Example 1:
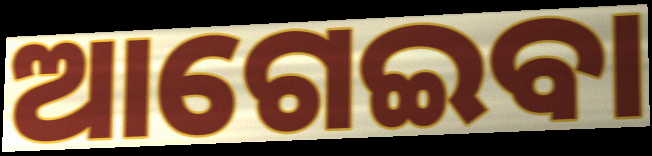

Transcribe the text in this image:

ଆଗେଇବା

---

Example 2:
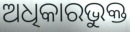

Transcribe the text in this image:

ଅଧିକାରଭୁକ୍ତ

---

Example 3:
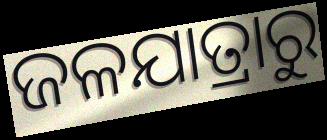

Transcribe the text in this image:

ଜଳଯାତ୍ରାରୁ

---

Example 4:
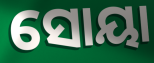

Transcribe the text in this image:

ସୋୟା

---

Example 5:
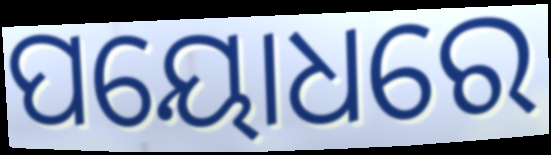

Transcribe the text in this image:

ପୟୋଧରେ